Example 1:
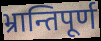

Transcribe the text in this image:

भ्रान्तिपूर्ण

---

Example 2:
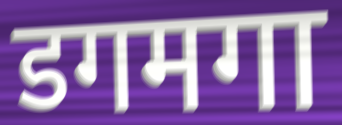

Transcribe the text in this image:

डगमगा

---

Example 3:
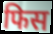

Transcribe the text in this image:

फिस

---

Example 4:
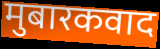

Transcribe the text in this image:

मुबारकवाद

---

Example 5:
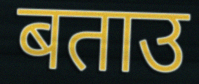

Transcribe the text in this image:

बताउ